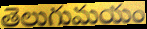
తెలుగుమయం